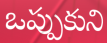
ఒప్పుకుని